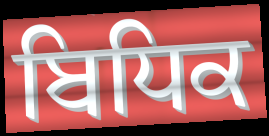
ਬਿਧਿਕ